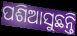
ପଶିଆସୁଛନ୍ତି